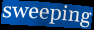
sweeping